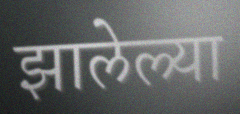
झालेल्या